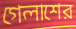
গেলাশের